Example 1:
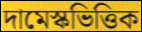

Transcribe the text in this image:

দামেস্কভিত্তিক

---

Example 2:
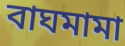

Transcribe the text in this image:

বাঘমামা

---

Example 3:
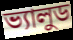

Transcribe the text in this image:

ভ্যালুড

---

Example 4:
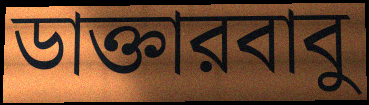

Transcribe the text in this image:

ডাক্তারবাবু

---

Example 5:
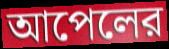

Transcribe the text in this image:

আপেলের